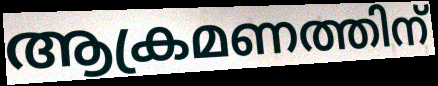
ആക്രമണത്തിന്